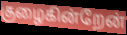
குழைகின்றேன்